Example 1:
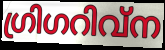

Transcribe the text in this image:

ഗ്രിഗറിവ്ന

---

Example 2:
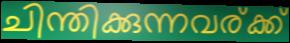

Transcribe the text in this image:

ചിന്തിക്കുന്നവര്ക്ക്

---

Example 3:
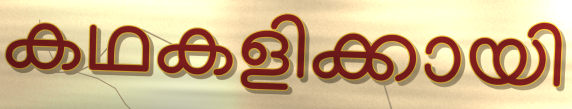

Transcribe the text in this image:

കഥകളിക്കായി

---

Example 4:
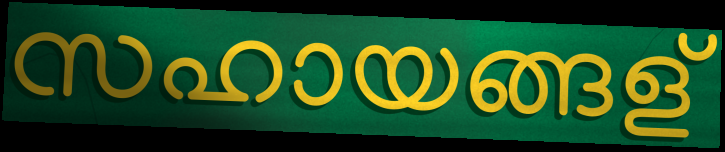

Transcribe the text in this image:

സഹായങ്ങള്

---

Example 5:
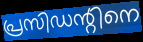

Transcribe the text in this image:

പ്രസിഡന്റിനെ